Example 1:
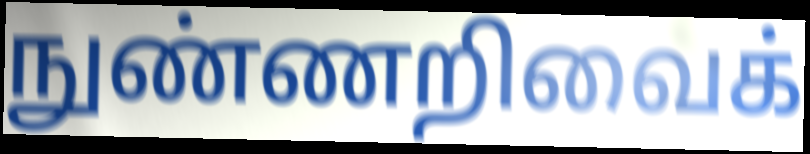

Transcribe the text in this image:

நுண்ணறிவைக்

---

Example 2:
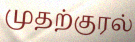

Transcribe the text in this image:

முதற்குரல்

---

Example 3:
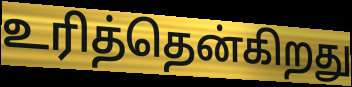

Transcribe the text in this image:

உரித்தென்கிறது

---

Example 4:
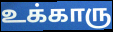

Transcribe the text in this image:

உக்காரு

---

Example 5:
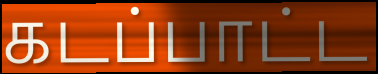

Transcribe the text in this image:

கடப்பாட்ட